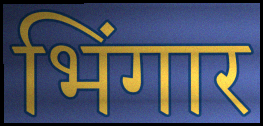
भिंगार